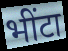
भींटा